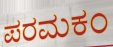
ಪರಮಕಂ